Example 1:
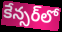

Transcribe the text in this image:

కేన్సర్‌లో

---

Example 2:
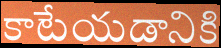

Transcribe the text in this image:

కాటేయడానికి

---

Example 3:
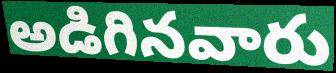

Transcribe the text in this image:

అడిగినవారు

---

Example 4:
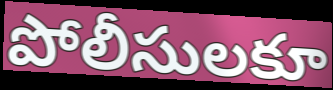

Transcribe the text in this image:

పోలీసులకూ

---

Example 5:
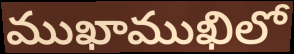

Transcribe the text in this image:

ముఖాముఖిలో